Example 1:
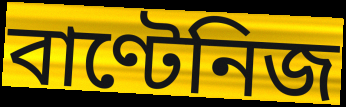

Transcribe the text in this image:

বাণ্টেনিজ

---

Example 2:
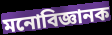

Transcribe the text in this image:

মনোবিজ্ঞানক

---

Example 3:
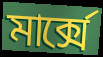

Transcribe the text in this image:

মাৰ্ক্সে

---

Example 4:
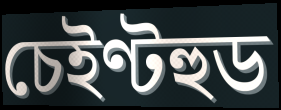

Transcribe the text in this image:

চেইণ্টহুড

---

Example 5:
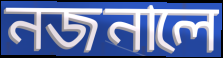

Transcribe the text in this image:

নজনালে